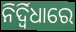
ନିର୍ଦ୍ୱିଧାରେ